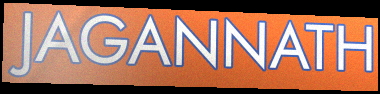
JAGANNATH